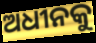
ଅଧୀନକୁ